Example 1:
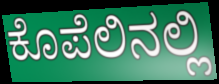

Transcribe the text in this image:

ಕೊಪೆಲಿನಲ್ಲಿ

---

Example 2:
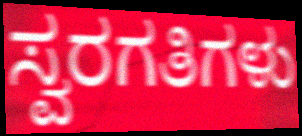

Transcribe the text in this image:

ಸ್ವರಗತಿಗಳು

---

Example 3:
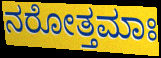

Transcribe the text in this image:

ನರೋತ್ತಮಾಃ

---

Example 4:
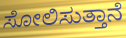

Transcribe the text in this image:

ಸೋಲಿಸುತ್ತಾನೆ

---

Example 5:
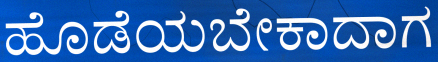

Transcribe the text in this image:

ಹೊಡೆಯಬೇಕಾದಾಗ